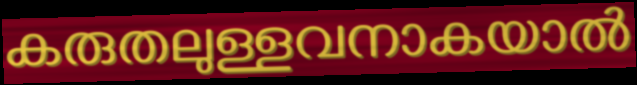
കരുതലുള്ളവനാകയാൽ